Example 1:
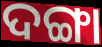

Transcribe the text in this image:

ଦଙ୍ଗା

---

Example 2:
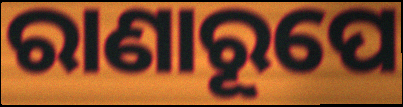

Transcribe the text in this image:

ରାଣାରୂପେ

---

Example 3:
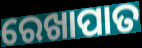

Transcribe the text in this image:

ରେଖାପାତ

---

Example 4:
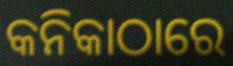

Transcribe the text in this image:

କନିକାଠାରେ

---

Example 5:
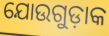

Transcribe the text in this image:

ଯୋଉଗୁଡ଼ାକ